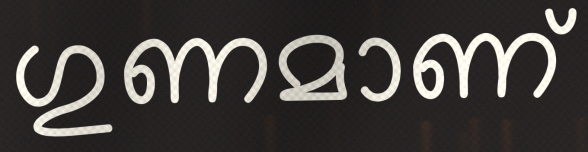
ഗുണമാണ്